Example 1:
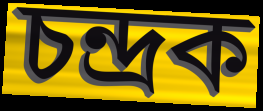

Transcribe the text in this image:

চন্দ্ৰক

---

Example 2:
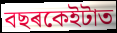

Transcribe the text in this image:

বছৰকেইটাত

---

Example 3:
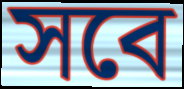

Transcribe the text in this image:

সবে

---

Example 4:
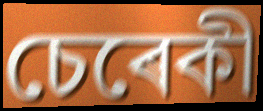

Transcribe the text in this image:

চেৰেকী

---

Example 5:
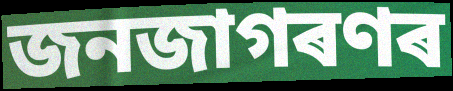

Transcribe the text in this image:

জনজাগৰণৰ